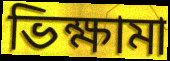
ভিক্ষামা